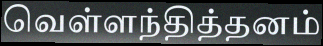
வெள்ளந்தித்தனம்